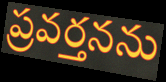
ప్రవర్తనను